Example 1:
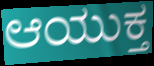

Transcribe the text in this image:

ಆಯುಕ್ತ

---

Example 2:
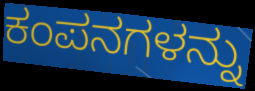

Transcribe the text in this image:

ಕಂಪನಗಳನ್ನು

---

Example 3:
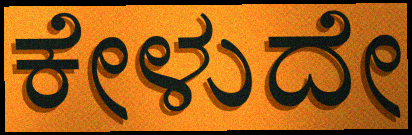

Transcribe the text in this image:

ಕೇಳುದೇ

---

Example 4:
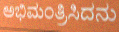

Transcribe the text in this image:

ಅಭಿಮಂತ್ರಿಸಿದನು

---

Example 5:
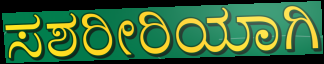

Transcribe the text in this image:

ಸಶರೀರಿಯಾಗಿ